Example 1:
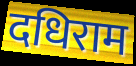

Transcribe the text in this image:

दधिराम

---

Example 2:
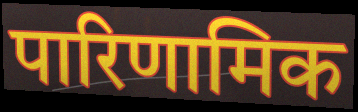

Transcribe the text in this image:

पारिणामिक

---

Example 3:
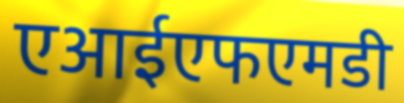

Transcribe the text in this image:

एआईएफएमडी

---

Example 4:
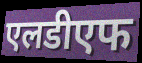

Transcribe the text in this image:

एलडीएफ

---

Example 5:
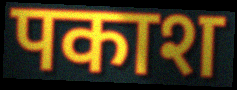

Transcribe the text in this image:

पकाश